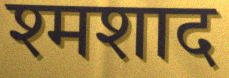
श्मशाद